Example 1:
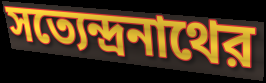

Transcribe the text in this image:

সত্যেন্দ্রনাথের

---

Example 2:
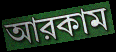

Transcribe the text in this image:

আরকাম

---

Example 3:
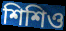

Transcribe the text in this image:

শিশিও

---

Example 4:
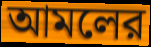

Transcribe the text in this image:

আমলের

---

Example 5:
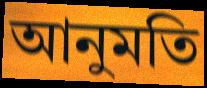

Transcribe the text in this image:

আনুমতি